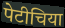
पेटीचिया